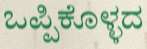
ಒಪ್ಪಿಕೊಳ್ಳದ